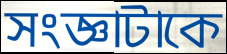
সংজ্ঞাটাকে